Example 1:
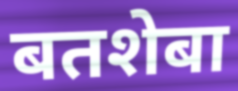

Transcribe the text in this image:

बतशेबा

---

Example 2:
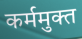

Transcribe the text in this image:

कर्ममुक्त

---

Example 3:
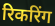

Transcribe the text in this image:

रिकरिंग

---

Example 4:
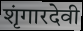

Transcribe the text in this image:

शृंगारदेवी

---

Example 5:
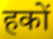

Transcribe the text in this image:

हकों